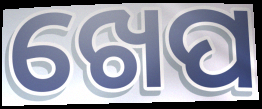
ଖେପ